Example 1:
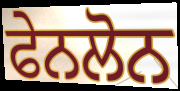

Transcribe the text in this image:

ਫੇਨਲੋਨ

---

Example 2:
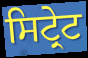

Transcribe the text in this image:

ਸਿਟ੍ਰੇਟ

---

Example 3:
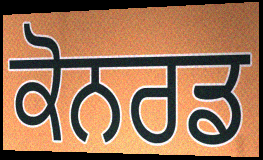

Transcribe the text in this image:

ਕੋਨਰਡ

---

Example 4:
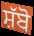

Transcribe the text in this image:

ਸ਼ੱਬੋ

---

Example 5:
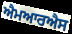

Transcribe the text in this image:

ਐਮਆਰਐਸ